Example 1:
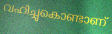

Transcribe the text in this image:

വഹിച്ചുകൊണ്ടാണ്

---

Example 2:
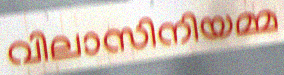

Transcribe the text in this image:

വിലാസിനിയമ്മ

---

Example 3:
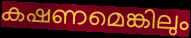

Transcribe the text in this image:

കഷണമെങ്കിലും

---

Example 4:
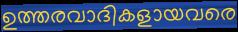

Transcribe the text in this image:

ഉത്തരവാദികളായവരെ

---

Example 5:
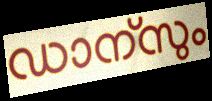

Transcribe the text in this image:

ഡാന്സും